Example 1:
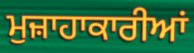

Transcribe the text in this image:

ਮੁਜ਼ਾਹਾਕਾਰੀਆਂ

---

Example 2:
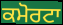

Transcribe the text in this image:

ਕਮੋਰਟਾ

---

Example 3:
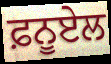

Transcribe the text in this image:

ਫ਼ਨੂਏਲ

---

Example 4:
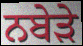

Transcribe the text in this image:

ਨਬੇੜੇ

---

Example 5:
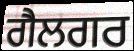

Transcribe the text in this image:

ਗੈਲਗਰ